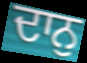
ਦਾਨੁ